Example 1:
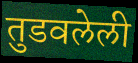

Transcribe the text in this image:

तुडवलेली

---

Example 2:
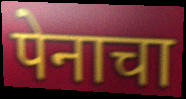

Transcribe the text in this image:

पेनाचा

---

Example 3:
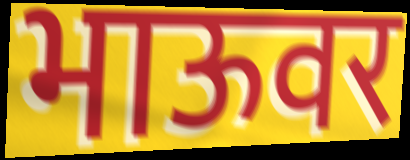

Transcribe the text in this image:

भाऊवर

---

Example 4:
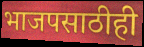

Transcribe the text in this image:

भाजपसाठीही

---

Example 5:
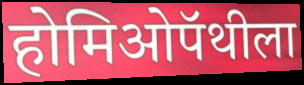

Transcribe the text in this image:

होमिओपॅथीला